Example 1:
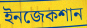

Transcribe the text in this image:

ইনজেকশান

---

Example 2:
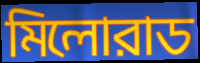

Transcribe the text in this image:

মিলোরাড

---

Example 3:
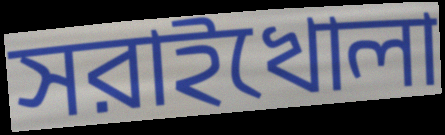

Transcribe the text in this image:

সরাইখোলা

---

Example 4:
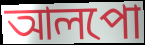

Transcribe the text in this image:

আলপো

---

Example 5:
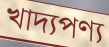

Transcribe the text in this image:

খাদ্যপণ্য